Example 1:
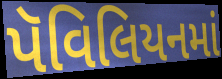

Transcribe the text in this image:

પૅવિલિયનમાં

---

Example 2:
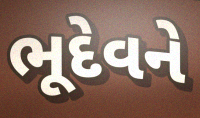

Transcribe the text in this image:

ભૂદેવને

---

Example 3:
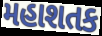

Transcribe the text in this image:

મહાશતક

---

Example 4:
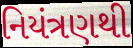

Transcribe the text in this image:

નિયંત્રણથી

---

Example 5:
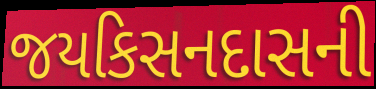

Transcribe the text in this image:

જયકિસનદાસની